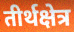
तीर्थक्षेत्र